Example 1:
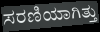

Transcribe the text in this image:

ಸರಣಿಯಾಗಿತ್ತು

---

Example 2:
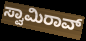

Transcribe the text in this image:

ಸ್ವಾಮಿರಾವ್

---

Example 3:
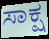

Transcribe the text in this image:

ಸಾಕ್ಷ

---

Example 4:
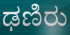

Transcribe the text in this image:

ಢಣಿರು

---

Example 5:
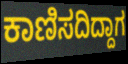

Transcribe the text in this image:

ಕಾಣಿಸದಿದ್ದಾಗ